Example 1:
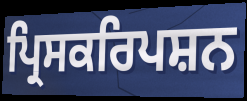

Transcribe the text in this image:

ਪ੍ਰਿਸਕਰਿਪਸ਼ਨ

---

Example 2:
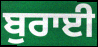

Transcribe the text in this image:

ਬੁਰਾਈ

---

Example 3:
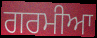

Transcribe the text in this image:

ਗਰਮੀਆ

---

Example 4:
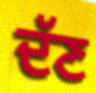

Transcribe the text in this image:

ਦੱਣ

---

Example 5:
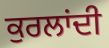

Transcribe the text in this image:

ਕੁਰਲਾਂਦੀ